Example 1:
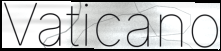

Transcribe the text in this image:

Vaticano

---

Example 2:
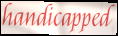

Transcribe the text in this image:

handicapped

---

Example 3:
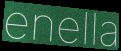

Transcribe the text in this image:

enella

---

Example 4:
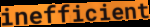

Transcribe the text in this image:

inefficient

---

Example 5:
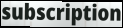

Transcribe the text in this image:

subscription